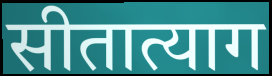
सीतात्याग